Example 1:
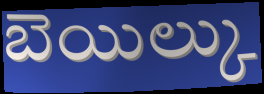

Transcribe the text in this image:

బెయిల్కు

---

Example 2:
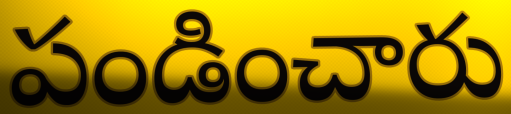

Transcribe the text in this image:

పండించారు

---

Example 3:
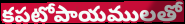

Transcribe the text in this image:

కపటోపాయములతో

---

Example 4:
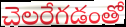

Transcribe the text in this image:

చెలరేగడంతో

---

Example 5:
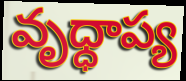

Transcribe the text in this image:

వృధ్ధాప్య